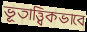
ভূতাত্ত্বিকভাবে